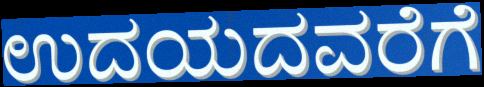
ಉದಯದವರೆಗೆ